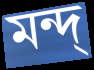
মন্দ্